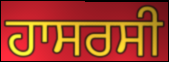
ਹਾਸਰਸੀ